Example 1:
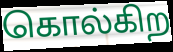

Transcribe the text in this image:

கொல்கிற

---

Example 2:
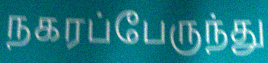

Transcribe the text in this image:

நகரப்பேருந்து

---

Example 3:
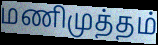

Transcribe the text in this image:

மணிமுத்தம்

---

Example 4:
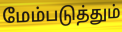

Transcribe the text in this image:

மேம்படுத்தும்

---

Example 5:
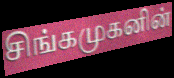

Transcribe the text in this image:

சிங்கமுகனின்